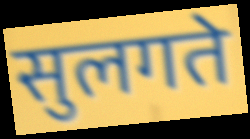
सुलगते